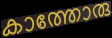
കാത്തോരു